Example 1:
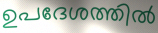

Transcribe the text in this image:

ഉപദേശത്തിൽ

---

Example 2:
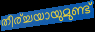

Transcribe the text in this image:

തീര്ച്ചയായുമുണ്ട്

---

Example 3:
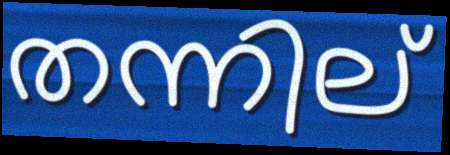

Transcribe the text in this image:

തന്നില്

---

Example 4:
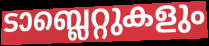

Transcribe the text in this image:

ടാബ്ലെറ്റുകളും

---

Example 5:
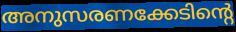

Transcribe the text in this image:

അനുസരണക്കേടിന്റെ